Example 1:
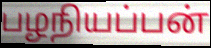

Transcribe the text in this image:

பழநியப்பன்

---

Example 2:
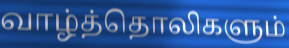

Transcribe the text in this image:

வாழ்த்தொலிகளும்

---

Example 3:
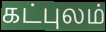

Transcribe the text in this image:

கட்புலம்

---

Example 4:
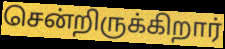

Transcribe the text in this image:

சென்றிருக்கிறார்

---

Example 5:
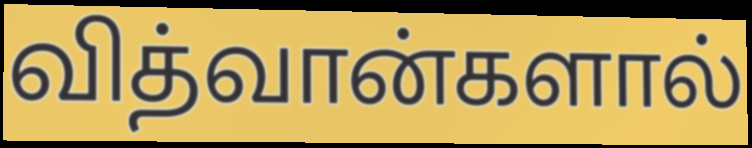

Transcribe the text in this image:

வித்வான்களால்